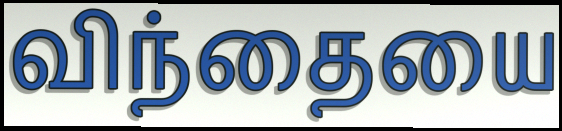
விந்தையை